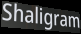
Shaligram